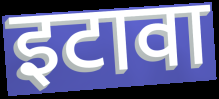
इटावा